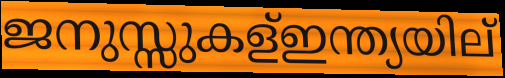
ജനുസ്സുകള്ഇന്ത്യയില്